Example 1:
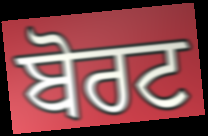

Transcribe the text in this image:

ਬੋਰਟ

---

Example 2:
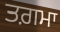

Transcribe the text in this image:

ਤਗ਼ਮਾ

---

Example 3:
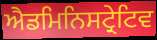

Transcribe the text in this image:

ਐਡਮਿਨਿਸਟ੍ਰੇਟਿਵ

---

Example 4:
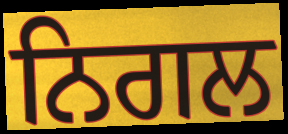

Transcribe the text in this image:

ਨਿਗਲ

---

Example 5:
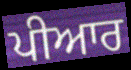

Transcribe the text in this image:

ਪੀਆਰ